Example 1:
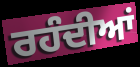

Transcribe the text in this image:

ਰਹੰਦੀਆਂ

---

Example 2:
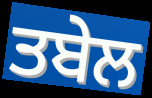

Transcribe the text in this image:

ਤਬੇਲ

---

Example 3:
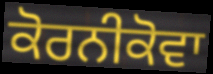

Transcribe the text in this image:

ਕੋਰਨੀਕੋਵਾ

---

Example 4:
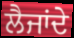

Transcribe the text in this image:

ਲੈਜਾਂਦੇ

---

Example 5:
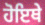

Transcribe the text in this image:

ਹੋਇਥੇ